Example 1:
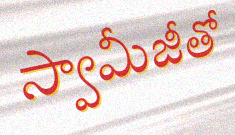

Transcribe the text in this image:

స్వామీజీతో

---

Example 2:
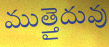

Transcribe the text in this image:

ముత్తైదువు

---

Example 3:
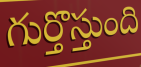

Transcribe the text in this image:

గుర్తొస్తుంది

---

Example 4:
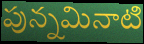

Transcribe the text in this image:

పున్నమినాటి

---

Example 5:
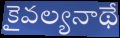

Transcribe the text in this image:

కైవల్యనాథే